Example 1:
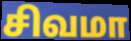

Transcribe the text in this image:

சிவமா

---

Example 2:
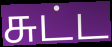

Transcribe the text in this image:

சுட்ட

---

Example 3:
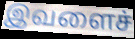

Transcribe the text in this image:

இவளைச்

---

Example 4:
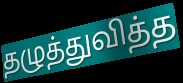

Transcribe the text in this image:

தழுத்துவித்த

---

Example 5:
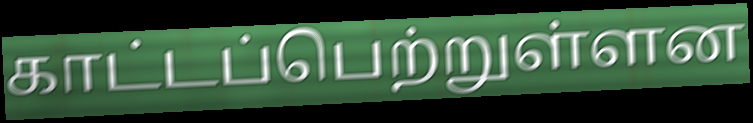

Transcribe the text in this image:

காட்டப்பெற்றுள்ளன